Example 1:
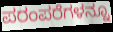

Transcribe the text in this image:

ಪರಂಪರೆಗಳನ್ನೂ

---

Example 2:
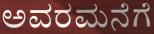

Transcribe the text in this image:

ಅವರಮನೆಗೆ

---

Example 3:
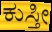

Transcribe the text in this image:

ಕುಸ್ತೀ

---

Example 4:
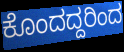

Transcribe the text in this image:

ಕೊಂದದ್ದರಿಂದ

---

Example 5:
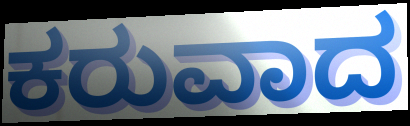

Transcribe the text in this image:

ಕರುವಾದ